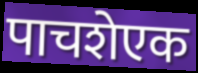
पाचशेएक